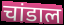
चांडाल